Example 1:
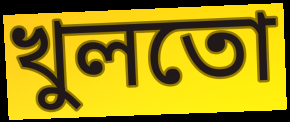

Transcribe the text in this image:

খুলতো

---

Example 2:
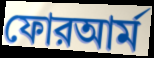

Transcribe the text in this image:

ফোরআর্ম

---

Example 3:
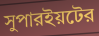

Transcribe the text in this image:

সুপারইয়টের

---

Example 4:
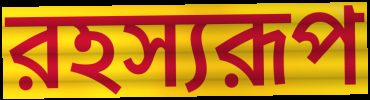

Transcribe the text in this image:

রহস্যরূপ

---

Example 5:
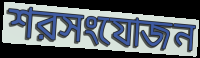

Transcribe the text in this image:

শরসংযোজন